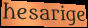
hesarige